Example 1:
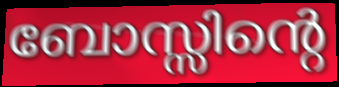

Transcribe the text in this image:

ബോസ്സിന്റെ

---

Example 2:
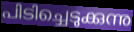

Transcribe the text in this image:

പിടിച്ചെടുക്കുന്നു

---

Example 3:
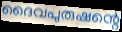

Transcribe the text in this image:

ദൈവപുരുഷന്റെ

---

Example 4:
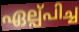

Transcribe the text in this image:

ഏല്പ്പിച്ച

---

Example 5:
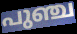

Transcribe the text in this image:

പുഞ്ച